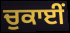
ਚੁਕਾਈਂ